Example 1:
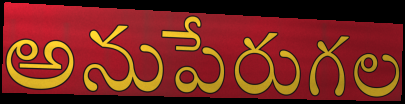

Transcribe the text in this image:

అనుపేరుగల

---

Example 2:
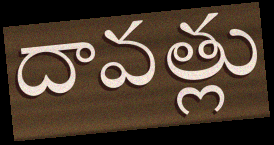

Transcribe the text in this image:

దావత్లు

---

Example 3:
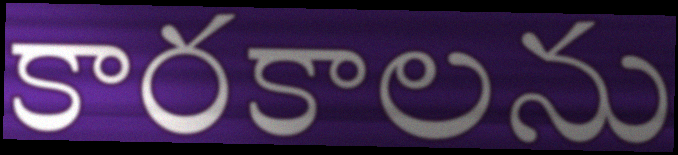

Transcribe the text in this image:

కారకాలను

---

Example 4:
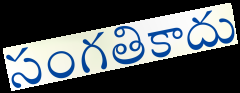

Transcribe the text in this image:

సంగతికాదు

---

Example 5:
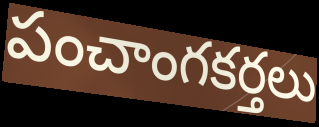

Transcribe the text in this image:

పంచాంగకర్తలు